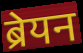
ब्रेयन